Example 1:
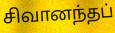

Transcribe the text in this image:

சிவானந்தப்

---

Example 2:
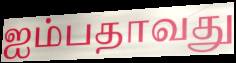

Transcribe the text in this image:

ஐம்பதாவது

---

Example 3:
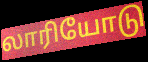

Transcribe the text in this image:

லாரியோடு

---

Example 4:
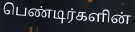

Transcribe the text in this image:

பெண்டிர்களின்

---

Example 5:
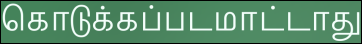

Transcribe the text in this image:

கொடுக்கப்படமாட்டாது